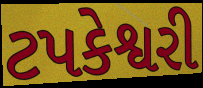
ટપકેશ્વરી